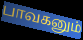
பாவகனும்